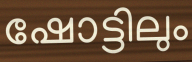
ഷോട്ടിലും